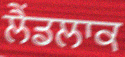
ਲੈਂਡਲਾਕ